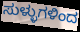
ಸುಳ್ಳುಗಳಿಂದ